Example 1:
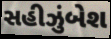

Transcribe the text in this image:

સહીઝુંબેશ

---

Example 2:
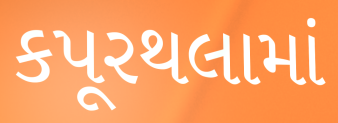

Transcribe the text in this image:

કપૂરથલામાં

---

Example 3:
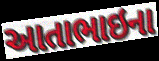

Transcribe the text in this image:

આતાભાઇના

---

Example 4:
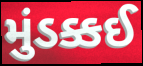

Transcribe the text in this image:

મુંડક્કઈ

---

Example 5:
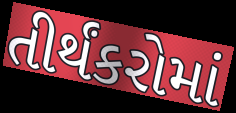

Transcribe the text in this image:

તીર્થંકરોમાં